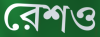
রেশও